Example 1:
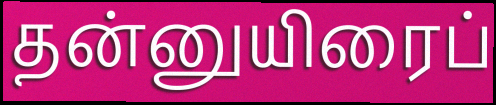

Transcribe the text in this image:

தன்னுயிரைப்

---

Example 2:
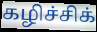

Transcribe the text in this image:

கழிச்சிக்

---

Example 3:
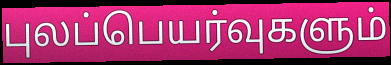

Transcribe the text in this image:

புலப்பெயர்வுகளும்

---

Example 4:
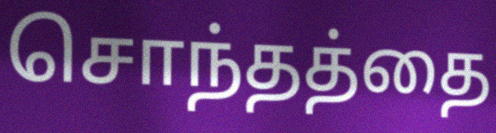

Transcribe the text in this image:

சொந்தத்தை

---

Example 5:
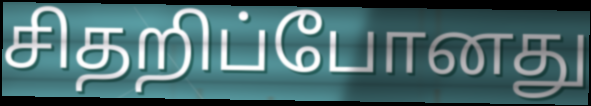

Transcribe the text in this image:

சிதறிப்போனது